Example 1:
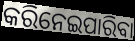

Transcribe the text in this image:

କରିନେଇପାରିବା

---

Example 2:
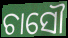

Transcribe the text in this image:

ଚାସୌ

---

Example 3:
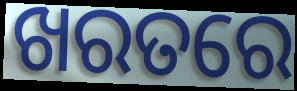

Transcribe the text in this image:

ଖରତରେ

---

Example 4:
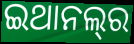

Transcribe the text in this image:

ଇଥାନଲ୍‌ର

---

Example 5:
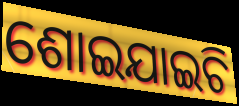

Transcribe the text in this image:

ଶୋଇଯାଇଚି